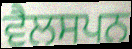
ਵੈਲਸਪਨ